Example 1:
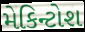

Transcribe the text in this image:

મેકિન્ટોશ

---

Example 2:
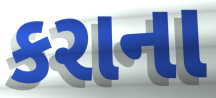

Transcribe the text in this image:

કરાના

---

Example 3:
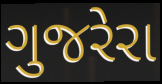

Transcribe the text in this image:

ગુજરેરા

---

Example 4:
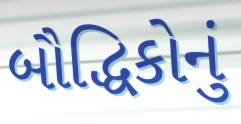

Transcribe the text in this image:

બૌદ્ધિકોનું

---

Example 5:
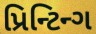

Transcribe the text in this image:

પ્રિન્ટિન્ગ